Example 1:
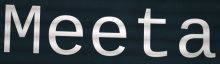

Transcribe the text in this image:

Meeta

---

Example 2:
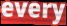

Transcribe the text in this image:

every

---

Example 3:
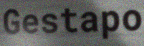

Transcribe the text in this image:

Gestapo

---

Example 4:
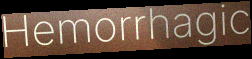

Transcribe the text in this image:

Hemorrhagic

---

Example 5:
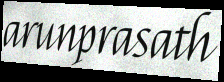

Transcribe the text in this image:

arunprasath